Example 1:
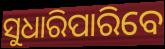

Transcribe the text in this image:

ସୁଧାରିପାରିବେ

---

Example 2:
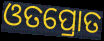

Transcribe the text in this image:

ଓତପ୍ରୋତ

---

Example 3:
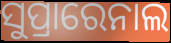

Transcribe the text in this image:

ସୁପ୍ରାରେନାଲ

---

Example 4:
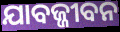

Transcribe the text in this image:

ଯାବଜ୍ଜୀବନ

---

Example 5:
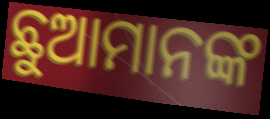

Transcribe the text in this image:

ଛୁଆମାନଙ୍କ